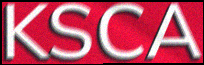
KSCA